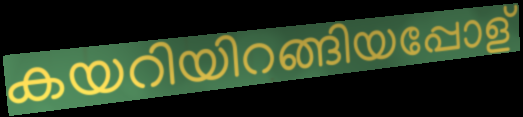
കയറിയിറങ്ങിയപ്പോള്